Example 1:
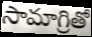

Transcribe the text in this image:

సామాగ్రితో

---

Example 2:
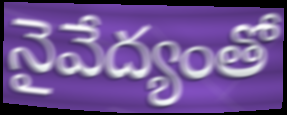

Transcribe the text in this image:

నైవేద్యంతో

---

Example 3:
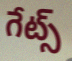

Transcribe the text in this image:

గేట్స్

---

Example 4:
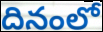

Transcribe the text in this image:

దినంలో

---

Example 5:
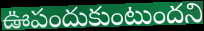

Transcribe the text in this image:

ఊపందుకుంటుందని